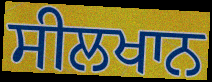
ਸੀਲਖਾਨ